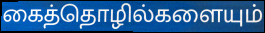
கைத்தொழில்களையும்